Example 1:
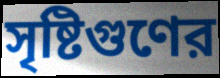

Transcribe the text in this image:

সৃষ্টিগুণের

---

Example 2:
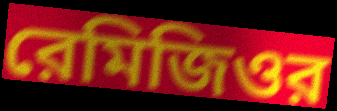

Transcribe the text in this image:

রেমিজিওর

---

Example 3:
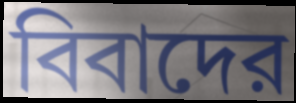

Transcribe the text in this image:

বিবাদের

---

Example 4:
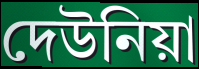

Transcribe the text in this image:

দেউনিয়া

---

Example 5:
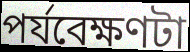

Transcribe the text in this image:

পর্যবেক্ষণটা